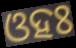
ଓହଃ